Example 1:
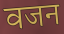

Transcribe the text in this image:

वजन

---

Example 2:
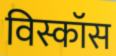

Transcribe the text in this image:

विस्कॉस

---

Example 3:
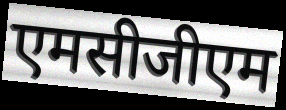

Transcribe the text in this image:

एमसीजीएम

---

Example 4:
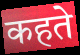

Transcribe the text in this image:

कहते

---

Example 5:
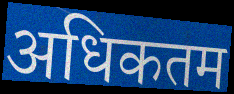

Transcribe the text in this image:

अधिकतम